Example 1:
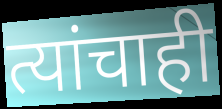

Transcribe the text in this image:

त्यांचाही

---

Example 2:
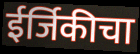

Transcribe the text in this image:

ईर्जिकीचा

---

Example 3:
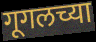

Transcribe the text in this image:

गूगलच्या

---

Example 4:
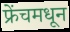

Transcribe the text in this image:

फ्रेंचमधून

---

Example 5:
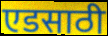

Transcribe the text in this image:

एडसाठी